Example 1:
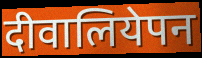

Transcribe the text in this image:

दीवालियेपन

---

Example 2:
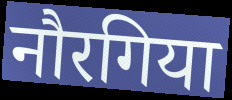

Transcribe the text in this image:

नौरगिया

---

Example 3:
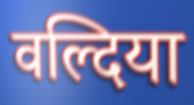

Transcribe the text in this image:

वल्दिया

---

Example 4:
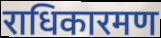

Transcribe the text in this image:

राधिकारमण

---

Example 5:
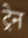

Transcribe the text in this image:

ट्रेन